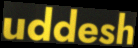
uddesh